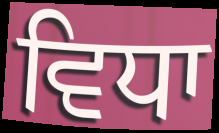
ਵਿਧਾ